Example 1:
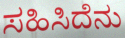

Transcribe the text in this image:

ಸಹಿಸಿದೆನು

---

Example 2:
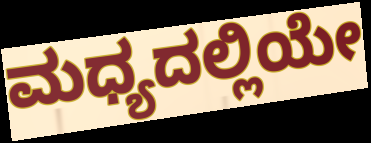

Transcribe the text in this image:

ಮಧ್ಯದಲ್ಲಿಯೇ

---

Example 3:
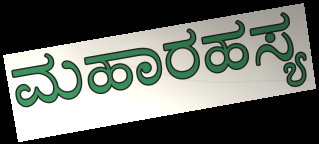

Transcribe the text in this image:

ಮಹಾರಹಸ್ಯ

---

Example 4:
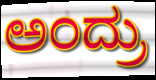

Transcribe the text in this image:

ಅಂದ್ರು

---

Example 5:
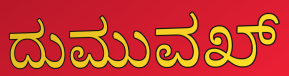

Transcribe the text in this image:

ದುಮುವಖ್